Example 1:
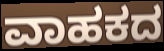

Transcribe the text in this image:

ವಾಹಕದ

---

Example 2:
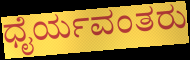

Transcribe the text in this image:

ಧೈರ್ಯವಂತರು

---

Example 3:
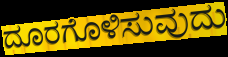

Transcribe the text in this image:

ದೂರಗೊಳಿಸುವುದು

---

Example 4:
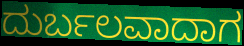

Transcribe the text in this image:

ದುರ್ಬಲವಾದಾಗ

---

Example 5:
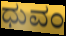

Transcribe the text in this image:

ಧುವಂ